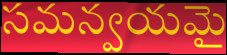
సమన్వయమై